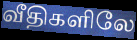
வீதிகளிலே